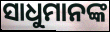
ସାଧୁମାନଙ୍କ